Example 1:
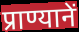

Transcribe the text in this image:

प्राण्यानें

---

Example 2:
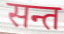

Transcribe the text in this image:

सन्त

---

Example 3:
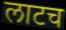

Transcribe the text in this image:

लाटच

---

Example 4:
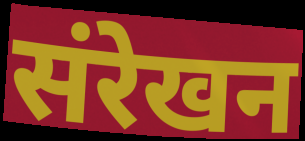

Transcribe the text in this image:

संरेखन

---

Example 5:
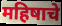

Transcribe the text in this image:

महिषाचे